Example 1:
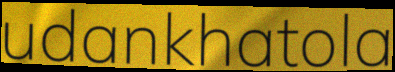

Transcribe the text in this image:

udankhatola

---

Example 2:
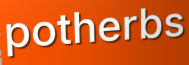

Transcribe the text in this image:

potherbs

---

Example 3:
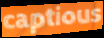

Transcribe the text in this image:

captious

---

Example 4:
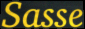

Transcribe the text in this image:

Sasse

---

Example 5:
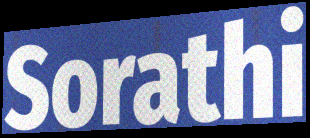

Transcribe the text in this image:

Sorathi